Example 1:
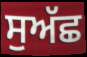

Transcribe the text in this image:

ਸੁਅੱਛ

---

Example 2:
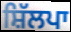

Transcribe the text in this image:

ਸ਼ਿੱਲਪਾ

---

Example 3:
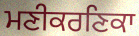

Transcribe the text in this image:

ਮਣੀਕਰਣਿਕਾ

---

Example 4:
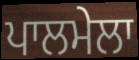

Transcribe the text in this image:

ਪਾਲਮੇਲਾ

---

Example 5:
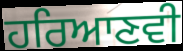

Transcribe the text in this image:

ਹਰਿਆਣਵੀ